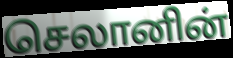
செலானின்